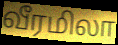
வீரமிலா